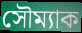
সৌম্যাক